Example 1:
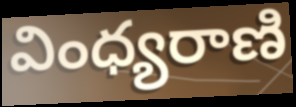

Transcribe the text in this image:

వింధ్యరాణి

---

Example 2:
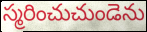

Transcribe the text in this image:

స్మరించుచుండెను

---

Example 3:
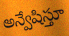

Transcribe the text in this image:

అన్వేషిస్తూ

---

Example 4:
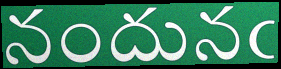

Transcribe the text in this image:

నందునఁ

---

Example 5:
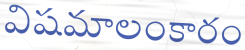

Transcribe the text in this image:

విషమాలంకారం